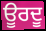
ਊਰਦੂ